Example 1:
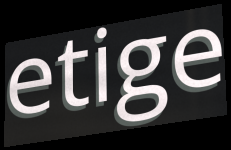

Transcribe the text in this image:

etige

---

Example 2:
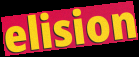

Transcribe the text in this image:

elision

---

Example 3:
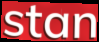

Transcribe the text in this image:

stan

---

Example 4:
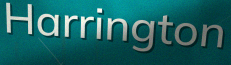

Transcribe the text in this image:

Harrington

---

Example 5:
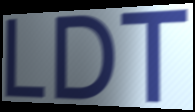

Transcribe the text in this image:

LDT